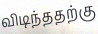
விடிந்ததற்கு